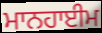
ਮਾਨਹਾਈਮ